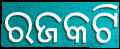
ରଜକଟି